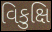
વિકુક્ષિ